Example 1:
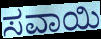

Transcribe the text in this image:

ಸವಾಯಿ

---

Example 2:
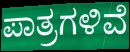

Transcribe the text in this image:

ಪಾತ್ರಗಳಿವೆ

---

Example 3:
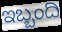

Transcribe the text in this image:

ಇಬ್ಬಂದಿ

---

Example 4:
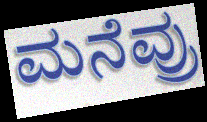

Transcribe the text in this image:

ಮನೆವ್ರು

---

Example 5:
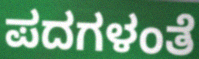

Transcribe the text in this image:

ಪದಗಳಂತೆ